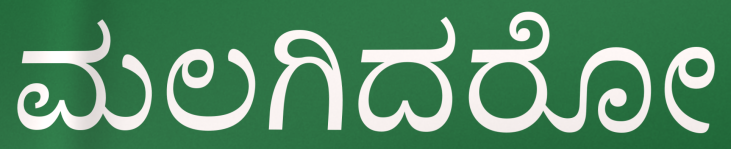
ಮಲಗಿದರೋ